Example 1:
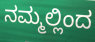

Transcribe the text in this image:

ನಮ್ಮಲ್ಲಿಂದ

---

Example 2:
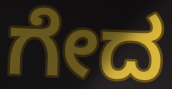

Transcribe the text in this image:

ಗೇದ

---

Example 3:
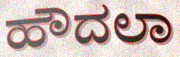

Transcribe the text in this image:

ಹೌದಲಾ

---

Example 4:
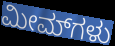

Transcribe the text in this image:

ಮೀಮ್‌ಗಳು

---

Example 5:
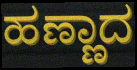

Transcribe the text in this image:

ಹಣ್ಣಾದ